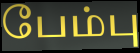
பேம்பு